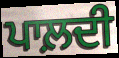
ਪਾਲ਼ਦੀ